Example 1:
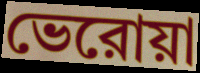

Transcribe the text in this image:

ভেরোয়া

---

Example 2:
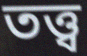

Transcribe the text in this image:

তত্ত্ব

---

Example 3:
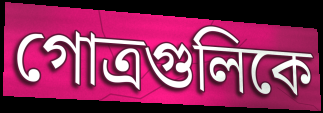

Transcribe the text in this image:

গোত্রগুলিকে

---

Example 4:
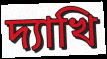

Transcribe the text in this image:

দ্যাখি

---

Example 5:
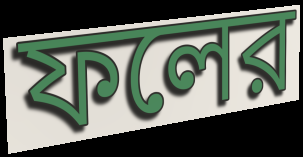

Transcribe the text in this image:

ফলের